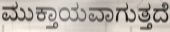
ಮುಕ್ತಾಯವಾಗುತ್ತದೆ